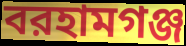
বরহামগঞ্জ